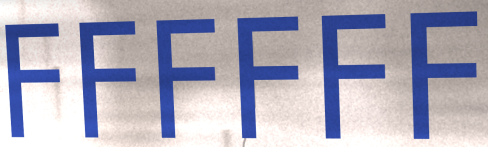
FFFFFF